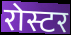
रोस्टर